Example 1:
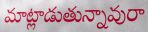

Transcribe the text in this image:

మాట్లాడుతున్నావురా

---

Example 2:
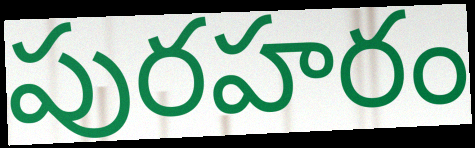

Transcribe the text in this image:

పురహరం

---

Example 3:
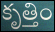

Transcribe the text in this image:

కృత్తిం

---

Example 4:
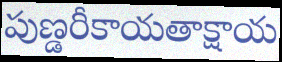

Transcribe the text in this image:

పుణ్డరీకాయతాక్షాయ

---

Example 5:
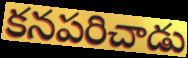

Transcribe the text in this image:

కనపరిచాడు